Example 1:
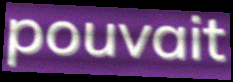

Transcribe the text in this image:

pouvait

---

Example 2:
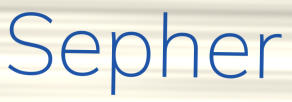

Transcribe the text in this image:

Sepher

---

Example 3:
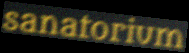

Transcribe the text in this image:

sanatorium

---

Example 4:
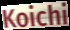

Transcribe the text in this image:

Koichi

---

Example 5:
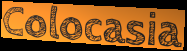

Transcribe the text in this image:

Colocasia